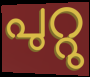
പുറ്റു